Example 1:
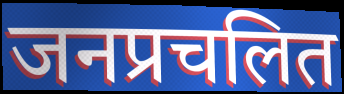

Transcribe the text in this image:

जनप्रचलित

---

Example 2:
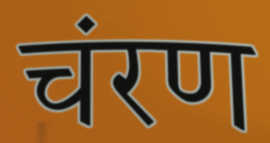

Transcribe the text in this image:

चंरण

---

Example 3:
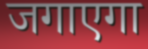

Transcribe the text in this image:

जगाएगा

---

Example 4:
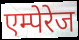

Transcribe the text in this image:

एम्पेरेज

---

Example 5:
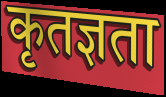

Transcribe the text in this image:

कृतज्ञता